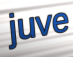
juve